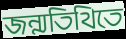
জন্মতিথিতে